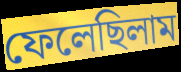
ফেলেছিলাম